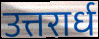
उत्तरार्ध